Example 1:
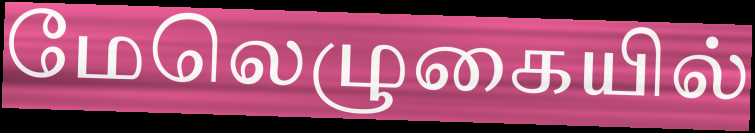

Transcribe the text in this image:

மேலெழுகையில்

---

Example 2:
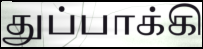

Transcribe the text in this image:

துப்பாக்கி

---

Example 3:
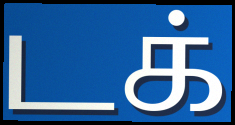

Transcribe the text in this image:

டக்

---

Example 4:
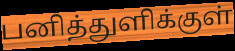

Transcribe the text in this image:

பனித்துளிக்குள்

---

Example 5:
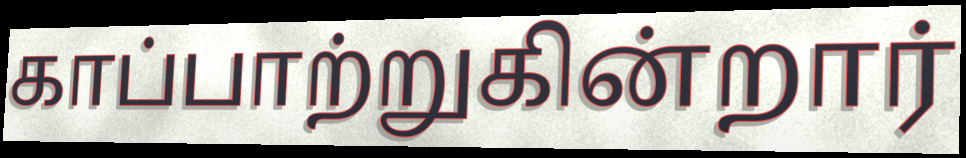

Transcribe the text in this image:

காப்பாற்றுகின்றார்